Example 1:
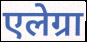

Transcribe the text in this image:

एलेग्रा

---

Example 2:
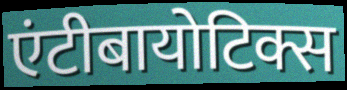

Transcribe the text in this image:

एंटीबायोटिक्स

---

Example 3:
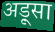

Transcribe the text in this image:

अड़ूसा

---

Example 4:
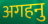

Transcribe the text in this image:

अगहनु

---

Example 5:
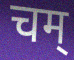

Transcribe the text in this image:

चम्